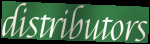
distributors